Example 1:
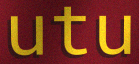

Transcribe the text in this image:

utu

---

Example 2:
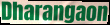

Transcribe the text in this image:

Dharangaon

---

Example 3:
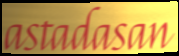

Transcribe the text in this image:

astadasan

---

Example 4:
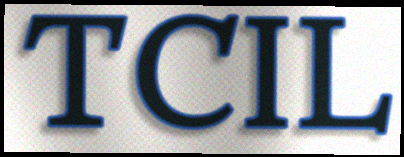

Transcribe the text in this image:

TCIL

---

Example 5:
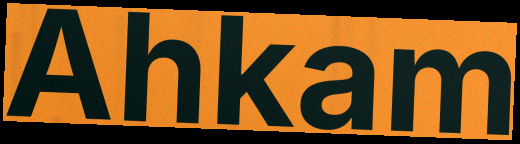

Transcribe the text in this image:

Ahkam